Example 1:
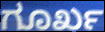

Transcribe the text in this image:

ಗೂರ್ಖ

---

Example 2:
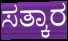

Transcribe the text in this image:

ಸತ್ಕಾರ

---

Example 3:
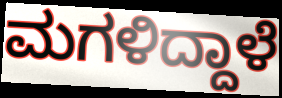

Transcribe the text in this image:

ಮಗಳಿದ್ದಾಳೆ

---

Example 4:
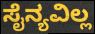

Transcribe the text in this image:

ಸೈನ್ಯವಿಲ್ಲ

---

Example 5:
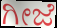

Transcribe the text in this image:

ಗೀಜೆ